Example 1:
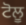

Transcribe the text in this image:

ਟੋਲੂ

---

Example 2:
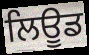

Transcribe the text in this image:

ਲਿਊਡ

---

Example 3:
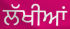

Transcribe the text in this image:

ਲੱਖੀਆਂ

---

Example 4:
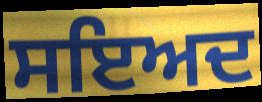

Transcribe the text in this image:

ਸਇਅਦ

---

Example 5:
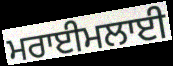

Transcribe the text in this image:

ਮਰਾਈਮਲਾਈ